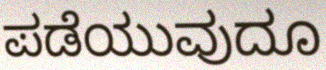
ಪಡೆಯುವುದೂ